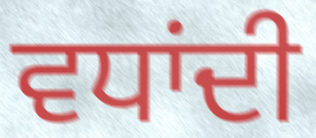
ਵਧਾਂਦੀ